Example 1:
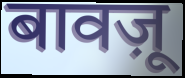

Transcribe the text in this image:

बावज़ू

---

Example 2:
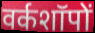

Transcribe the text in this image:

वर्कशॉपों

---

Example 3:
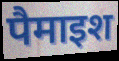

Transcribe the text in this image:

पैमाइश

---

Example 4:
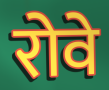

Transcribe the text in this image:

रोवे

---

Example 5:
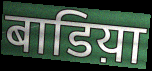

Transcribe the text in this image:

बाडिय़ा